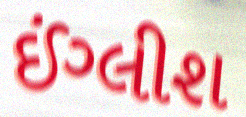
ઈંગ્લીશ